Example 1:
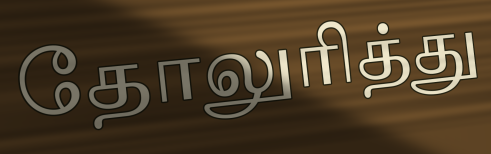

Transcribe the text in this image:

தோலுரித்து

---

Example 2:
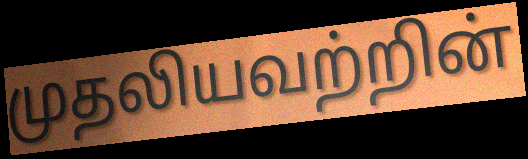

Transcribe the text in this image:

முதலியவற்றின்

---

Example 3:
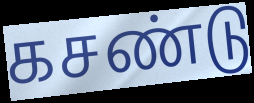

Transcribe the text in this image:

கசண்டு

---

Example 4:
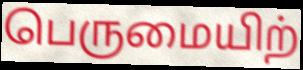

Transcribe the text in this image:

பெருமையிற்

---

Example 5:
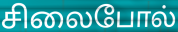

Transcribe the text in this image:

சிலைபோல்